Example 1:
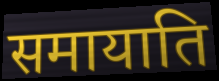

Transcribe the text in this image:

समायाति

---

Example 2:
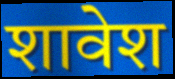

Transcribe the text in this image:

शावेश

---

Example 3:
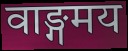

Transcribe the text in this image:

वाङ्गमय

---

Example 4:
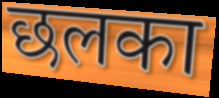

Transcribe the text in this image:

छलका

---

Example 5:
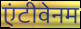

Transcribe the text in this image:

एंटीवेनम